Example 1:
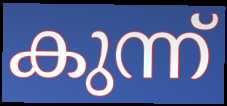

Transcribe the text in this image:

കുന്ന്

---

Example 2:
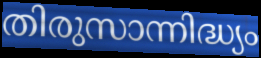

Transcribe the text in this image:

തിരുസാന്നിദ്ധ്യം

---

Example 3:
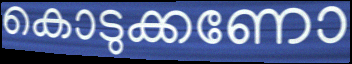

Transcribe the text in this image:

കൊടുക്കണോ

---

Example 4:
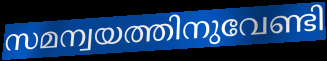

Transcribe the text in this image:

സമന്വയത്തിനുവേണ്ടി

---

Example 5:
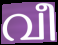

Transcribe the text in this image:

വീ